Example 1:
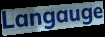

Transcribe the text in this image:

Langauge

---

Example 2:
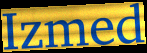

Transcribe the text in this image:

Izmed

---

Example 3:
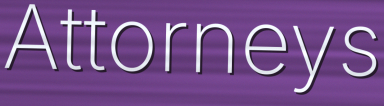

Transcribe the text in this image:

Attorneys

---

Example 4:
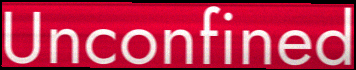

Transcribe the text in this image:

Unconfined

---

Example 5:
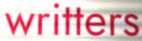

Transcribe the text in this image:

writters